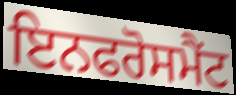
ਇਨਫਰੋਸਮੈਂਟ